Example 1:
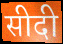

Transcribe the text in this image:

सीदी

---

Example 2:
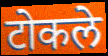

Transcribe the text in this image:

टोकले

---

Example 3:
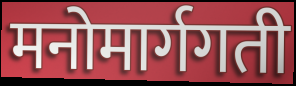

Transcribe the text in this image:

मनोमार्गगती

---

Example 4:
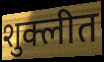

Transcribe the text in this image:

शुक्लीत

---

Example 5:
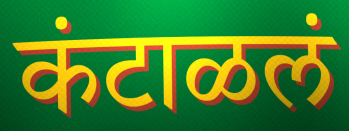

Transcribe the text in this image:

कंटाळलं